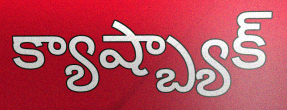
క్యాష్బ్యాక్